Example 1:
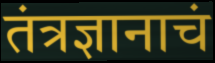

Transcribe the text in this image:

तंत्रज्ञानाचं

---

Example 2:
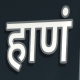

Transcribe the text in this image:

हाणं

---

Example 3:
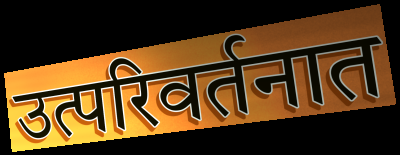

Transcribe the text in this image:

उत्परिवर्तनात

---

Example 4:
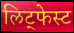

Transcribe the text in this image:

लिट्फेस्ट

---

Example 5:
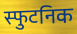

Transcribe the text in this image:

स्फुटनिक